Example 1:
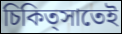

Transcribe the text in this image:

চিকিত্সাতেই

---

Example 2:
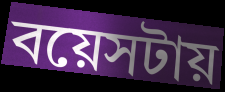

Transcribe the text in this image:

বয়েসটায়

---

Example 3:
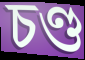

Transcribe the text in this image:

চণ্ড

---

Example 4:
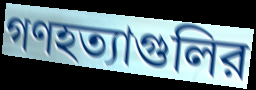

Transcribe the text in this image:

গণহত্যাগুলির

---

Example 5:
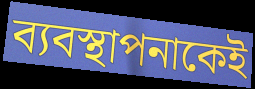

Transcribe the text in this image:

ব্যবস্থাপনাকেই